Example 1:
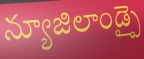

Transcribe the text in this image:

న్యూజిలాండ్పై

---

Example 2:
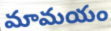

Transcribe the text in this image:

మామయం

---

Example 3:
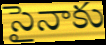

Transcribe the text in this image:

సైనాకు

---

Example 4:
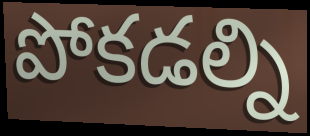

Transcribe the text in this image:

పోకడల్ని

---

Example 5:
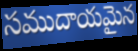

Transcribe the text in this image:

సముదాయమైన